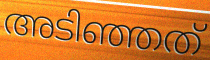
അടിഞ്ഞത്